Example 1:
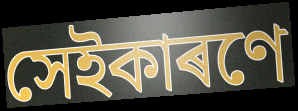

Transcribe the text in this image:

সেইকাৰণে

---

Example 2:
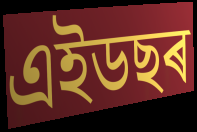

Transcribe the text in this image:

এইডছৰ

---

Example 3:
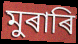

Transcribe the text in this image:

মুৰাৰি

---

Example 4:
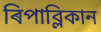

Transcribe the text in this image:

ৰিপাব্লিকান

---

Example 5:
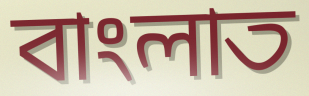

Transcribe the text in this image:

বাংলাত